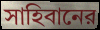
সাহিবানের